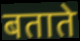
बताते